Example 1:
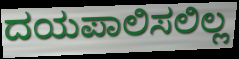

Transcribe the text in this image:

ದಯಪಾಲಿಸಲಿಲ್ಲ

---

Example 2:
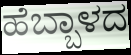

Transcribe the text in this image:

ಹೆಬ್ಬಾಳದ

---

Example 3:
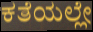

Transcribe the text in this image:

ಕತೆಯಲ್ಲೇ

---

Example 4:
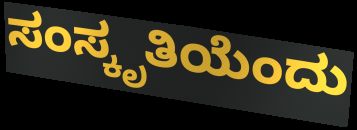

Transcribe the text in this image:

ಸಂಸ್ಕೃತಿಯೆಂದು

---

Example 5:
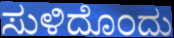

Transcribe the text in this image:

ಸುಳಿದೊಂದು